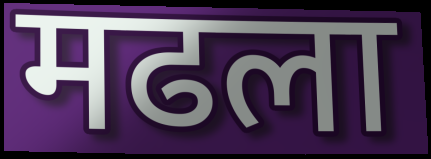
मढला